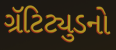
ગ્રૅટિટ્યુડનો